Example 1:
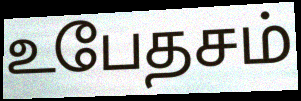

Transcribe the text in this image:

உபேதசம்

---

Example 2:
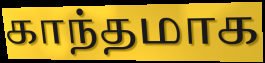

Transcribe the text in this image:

காந்தமாக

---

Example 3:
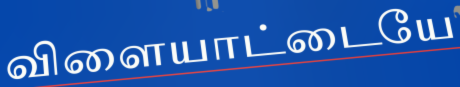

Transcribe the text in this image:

விளையாட்டையே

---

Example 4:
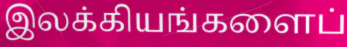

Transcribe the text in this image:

இலக்கியங்களைப்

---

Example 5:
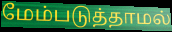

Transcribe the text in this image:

மேம்படுத்தாமல்